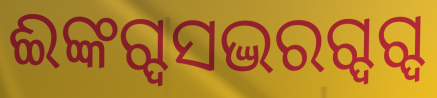
ଈଙ୍କଗ୍ଦସଦ୍ଭରଗ୍ଦଗ୍ଦ